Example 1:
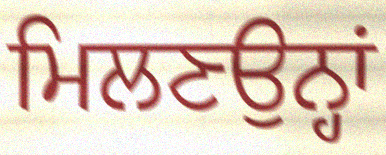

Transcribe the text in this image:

ਮਿਲਣਉਨ੍ਹਾਂ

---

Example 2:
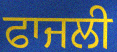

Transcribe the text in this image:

ਫਾਜਲੀ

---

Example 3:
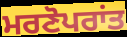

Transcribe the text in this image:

ਮਰਣੋਪਰਾਂਤ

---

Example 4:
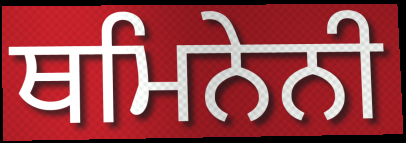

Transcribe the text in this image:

ਥਮਿਨੇਨੀ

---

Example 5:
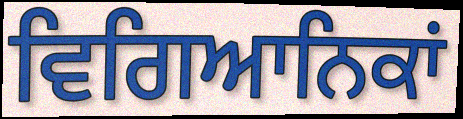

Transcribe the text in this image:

ਵਿਗਿਆਨਿਕਾਂ